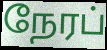
நேரப்